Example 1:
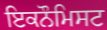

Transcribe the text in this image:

ਇਕਨੌਮਿਸਟ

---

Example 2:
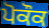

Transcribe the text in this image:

ਪੋਕੌਕ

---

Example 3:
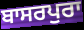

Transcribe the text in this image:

ਬਾਸਰਪੁਰਾ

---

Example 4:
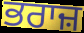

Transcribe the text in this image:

ਭਰਾਜ਼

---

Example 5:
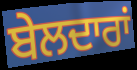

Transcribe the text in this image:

ਬੇਲਦਾਰਾਂ